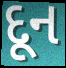
દૂન